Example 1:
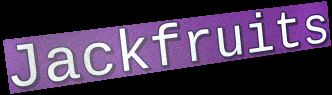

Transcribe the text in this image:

Jackfruits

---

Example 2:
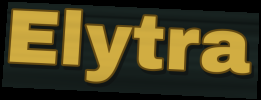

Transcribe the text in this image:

Elytra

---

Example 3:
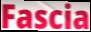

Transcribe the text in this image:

Fascia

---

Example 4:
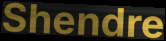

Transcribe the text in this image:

Shendre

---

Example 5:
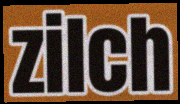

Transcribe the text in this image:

zilch